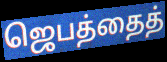
ஜெபத்தைத்